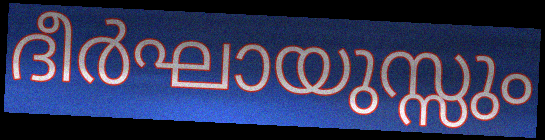
ദീർഘായുസ്സും